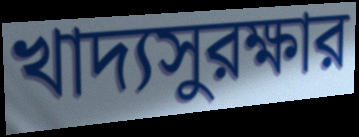
খাদ্যসুরক্ষার